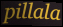
pillala